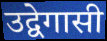
उद्वेगासी